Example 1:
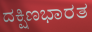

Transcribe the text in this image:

ದಕ್ಷಿಣಭಾರತ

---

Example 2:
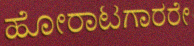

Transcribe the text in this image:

ಹೋರಾಟಗಾರರೇ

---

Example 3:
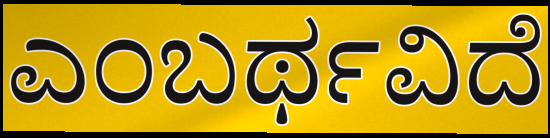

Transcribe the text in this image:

ಎಂಬರ್ಥವಿದೆ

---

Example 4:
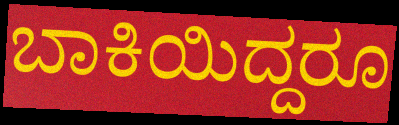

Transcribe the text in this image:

ಬಾಕಿಯಿದ್ದರೂ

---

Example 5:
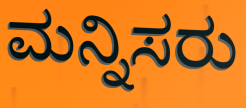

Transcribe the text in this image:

ಮನ್ನಿಸರು